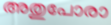
അതുപോരാ